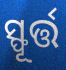
ସ୍ଫୂର୍ତ୍ତ